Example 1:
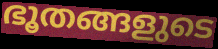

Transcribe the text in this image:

ഭൂതങ്ങളുടെ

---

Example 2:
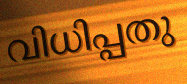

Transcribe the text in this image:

വിധിപ്പതു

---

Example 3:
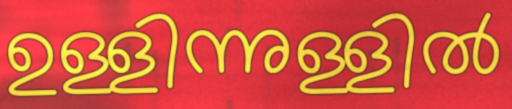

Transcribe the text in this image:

ഉള്ളിന്നുള്ളിൽ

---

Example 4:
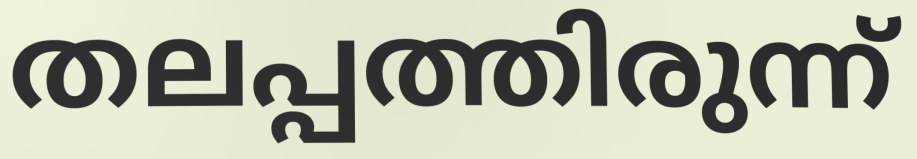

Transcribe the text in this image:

തലപ്പത്തിരുന്ന്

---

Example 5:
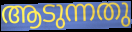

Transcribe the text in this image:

ആടുന്നതു